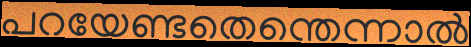
പറയേണ്ടതെന്തെന്നാൽ